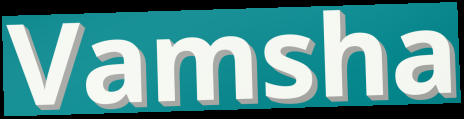
Vamsha